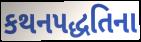
કથનપદ્ધતિના